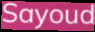
Sayoud